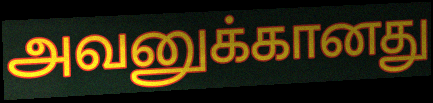
அவனுக்கானது